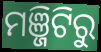
ମଞ୍ଜିଟିରୁ